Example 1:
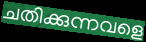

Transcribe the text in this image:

ചതിക്കുന്നവളെ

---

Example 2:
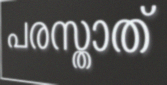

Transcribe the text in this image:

പരസ്താത്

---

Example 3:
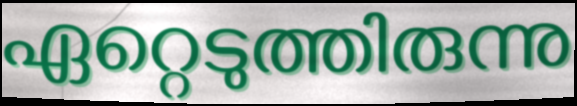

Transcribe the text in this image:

ഏറ്റെടുത്തിരുന്നു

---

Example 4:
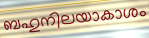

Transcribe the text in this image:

ബഹുനിലയാകാശം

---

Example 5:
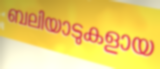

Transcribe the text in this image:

ബലിയാടുകളായ